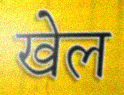
खेल